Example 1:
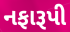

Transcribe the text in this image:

નફારૂપી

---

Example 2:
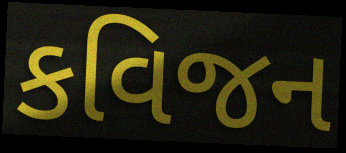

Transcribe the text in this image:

કવિજન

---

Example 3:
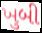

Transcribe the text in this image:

ખુબી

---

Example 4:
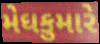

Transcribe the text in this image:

મેઘકુમારે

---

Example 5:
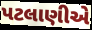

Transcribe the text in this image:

પટલાણીએ